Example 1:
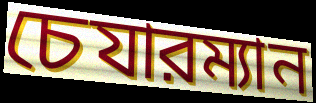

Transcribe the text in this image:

চেযারম্যান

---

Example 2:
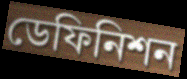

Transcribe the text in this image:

ডেফিনিশন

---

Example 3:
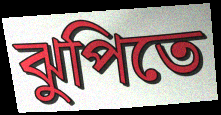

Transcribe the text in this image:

ঝুপিতে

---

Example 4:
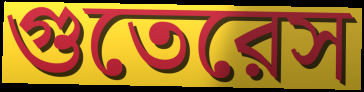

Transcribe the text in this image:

গুতেরেস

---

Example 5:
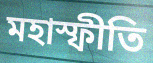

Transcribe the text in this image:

মহাস্ফীতি